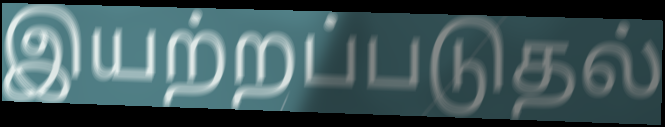
இயற்றப்படுதல்